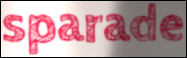
sparade